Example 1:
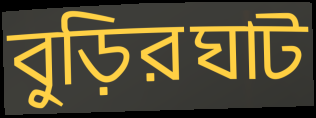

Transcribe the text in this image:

বুড়িরঘাট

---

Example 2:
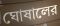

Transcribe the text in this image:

ঘোষালের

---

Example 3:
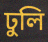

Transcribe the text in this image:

ঢুলি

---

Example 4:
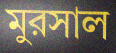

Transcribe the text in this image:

মুরসাল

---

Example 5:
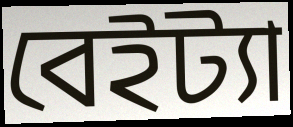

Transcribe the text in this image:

বেইট্যা